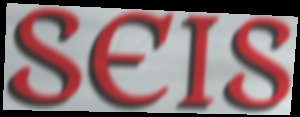
SEIS